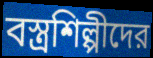
বস্ত্রশিল্পীদের